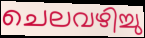
ചെലവഴിച്ചു